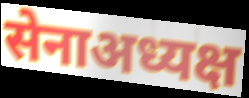
सेनाअध्यक्ष